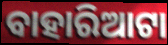
ବାହାରିଆଟା